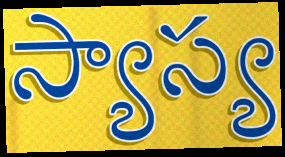
స్యాస్య